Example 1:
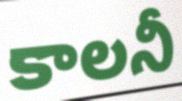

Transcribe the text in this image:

కాలనీ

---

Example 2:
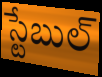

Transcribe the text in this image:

స్టేబుల్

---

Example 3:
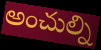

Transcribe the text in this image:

అంచుల్ని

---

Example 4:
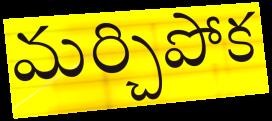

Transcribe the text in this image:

మర్చిపోక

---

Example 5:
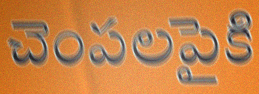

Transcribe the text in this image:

చెంపలపైకి